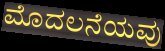
ಮೊದಲನೆಯವು